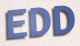
EDD